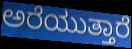
ಅರೆಯುತ್ತಾರೆ